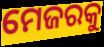
ମେଜରକୁ